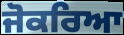
ਜੋਕਰਿਆ